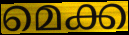
മെക്ക